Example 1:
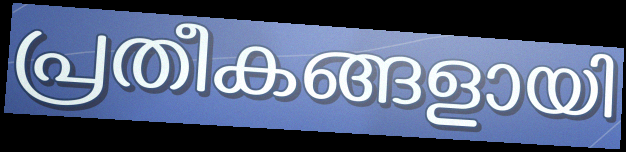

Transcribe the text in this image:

പ്രതീകങ്ങളായി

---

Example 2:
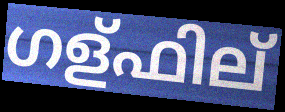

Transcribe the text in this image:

ഗള്ഫില്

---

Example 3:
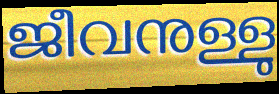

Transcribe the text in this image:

ജീവനുള്ളു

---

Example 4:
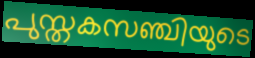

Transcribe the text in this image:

പുസ്തകസഞ്ചിയുടെ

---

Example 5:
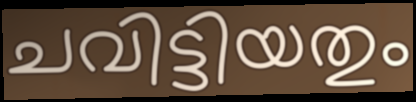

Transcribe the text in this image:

ചവിട്ടിയതും